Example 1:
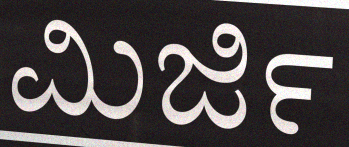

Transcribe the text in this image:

ಮಿರ್ಜಿ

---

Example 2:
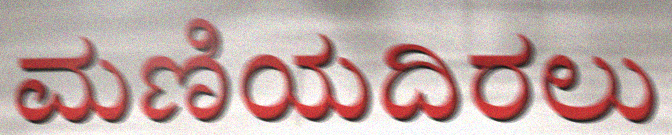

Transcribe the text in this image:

ಮಣಿಯದಿರಲು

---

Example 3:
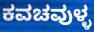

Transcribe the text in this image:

ಕವಚವುಳ್ಳ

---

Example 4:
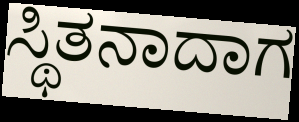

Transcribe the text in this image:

ಸ್ಥಿತನಾದಾಗ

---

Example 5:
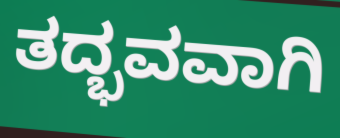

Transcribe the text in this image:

ತದ್ಭವವಾಗಿ